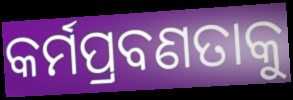
କର୍ମପ୍ରବଣତାକୁ